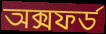
অক্সফৰ্ড